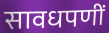
सावधपणीं